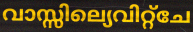
വാസ്സില്യെവിറ്റ്ചേ